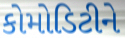
કોમોડિટીને